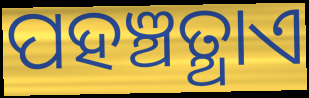
ପହଞ୍ଚତ୍ଥାଏ